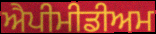
ਐਪੀਮੀਡੀਅਮ